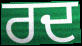
ਰਦ